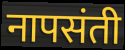
नापसंती